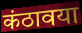
कंठावया